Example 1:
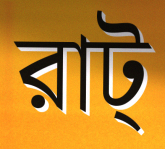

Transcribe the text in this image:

রাট্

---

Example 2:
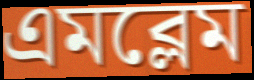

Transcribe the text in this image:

এমব্লেম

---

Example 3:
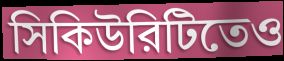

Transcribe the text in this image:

সিকিউরিটিতেও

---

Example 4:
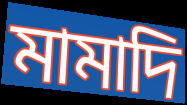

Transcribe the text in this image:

মামাদি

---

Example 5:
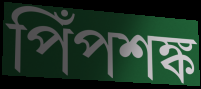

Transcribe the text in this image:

পিঁপশঙ্ক